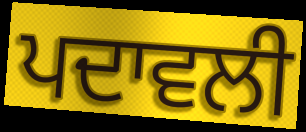
ਪਦਾਵਲੀ